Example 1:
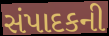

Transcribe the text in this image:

સંપાદકની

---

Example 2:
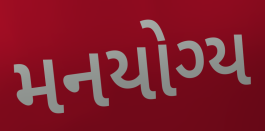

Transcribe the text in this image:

મનયોગ્ય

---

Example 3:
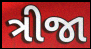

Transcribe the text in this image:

ત્રીજા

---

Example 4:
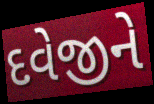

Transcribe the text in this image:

દવેજીને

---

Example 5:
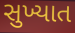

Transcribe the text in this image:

સુખ્યાત